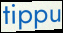
tippu